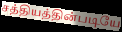
சத்தியத்தின்படியே